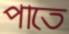
পাতে